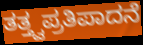
ತತ್ತ್ವಪ್ರತಿಪಾದನೆ